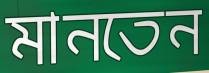
মানতেন